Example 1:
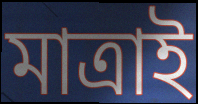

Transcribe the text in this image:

মাত্ৰাই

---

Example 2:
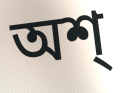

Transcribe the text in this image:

অশ্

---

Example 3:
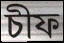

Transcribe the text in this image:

চীফ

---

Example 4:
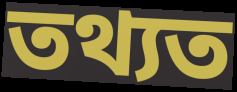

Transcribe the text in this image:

তথ্যত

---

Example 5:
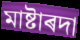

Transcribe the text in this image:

মাষ্টাৰদা